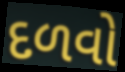
દળવો